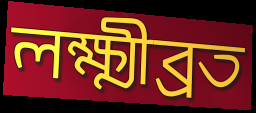
লক্ষ্মীব্রত